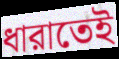
ধারাতেই